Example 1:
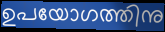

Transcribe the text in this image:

ഉപയോഗത്തിനു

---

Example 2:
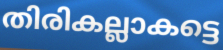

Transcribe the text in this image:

തിരികല്ലാകട്ടെ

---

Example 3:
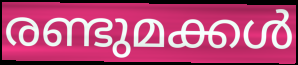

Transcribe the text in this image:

രണ്ടുമക്കൾ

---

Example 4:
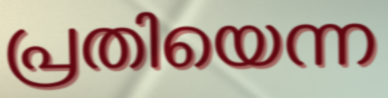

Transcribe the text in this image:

പ്രതിയെന്ന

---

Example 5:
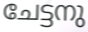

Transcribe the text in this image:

ചേട്ടനു